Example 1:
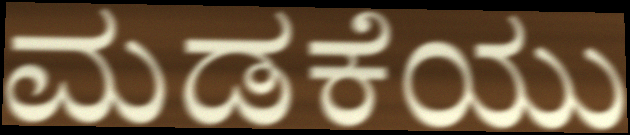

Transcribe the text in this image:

ಮಡಕೆಯು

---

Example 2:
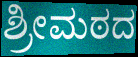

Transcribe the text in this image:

ಶ್ರೀಮಠದ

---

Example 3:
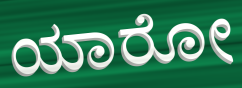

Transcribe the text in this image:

ಯಾರೋ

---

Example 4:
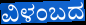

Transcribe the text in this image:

ವಿಳಂಬದ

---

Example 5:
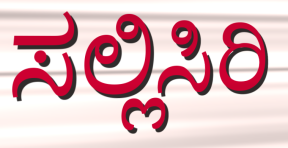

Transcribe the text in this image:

ಸಲ್ಲಿಸಿರಿ